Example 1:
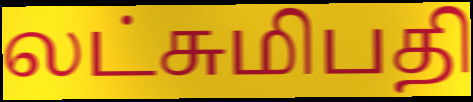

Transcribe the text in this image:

லட்சுமிபதி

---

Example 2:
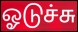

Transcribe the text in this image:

ஓடுச்சு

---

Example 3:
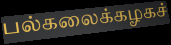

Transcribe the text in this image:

பல்கலைக்கழகச்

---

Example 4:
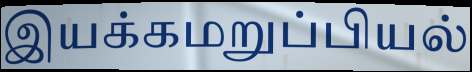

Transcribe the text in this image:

இயக்கமறுப்பியல்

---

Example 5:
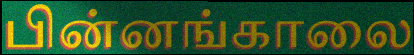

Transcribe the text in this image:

பின்னங்காலை